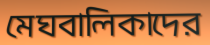
মেঘবালিকাদের